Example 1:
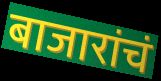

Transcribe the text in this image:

बाजारांचं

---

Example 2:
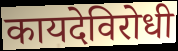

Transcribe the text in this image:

कायदेविरोधी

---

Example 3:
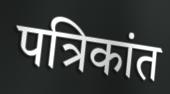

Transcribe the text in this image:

पत्रिकांत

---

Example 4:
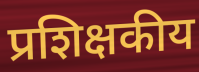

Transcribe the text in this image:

प्रशिक्षकीय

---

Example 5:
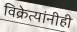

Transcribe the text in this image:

विक्रेत्यांनीही